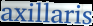
axillaris